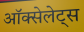
ऑक्सेलेट्स